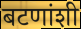
बटणांशी